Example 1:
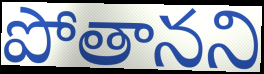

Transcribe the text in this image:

పోతానని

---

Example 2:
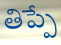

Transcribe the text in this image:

తిప్పే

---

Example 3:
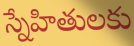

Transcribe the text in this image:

స్నేహితులకు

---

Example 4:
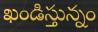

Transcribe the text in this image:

ఖండిస్తున్నం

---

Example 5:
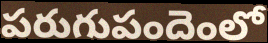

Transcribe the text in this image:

పరుగుపందెంలో